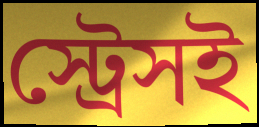
স্ট্রেসই